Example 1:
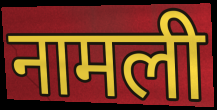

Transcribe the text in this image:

नामली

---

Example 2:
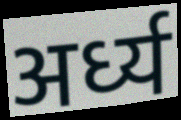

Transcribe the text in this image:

अर्ध्य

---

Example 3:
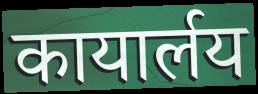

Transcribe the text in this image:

कायार्लय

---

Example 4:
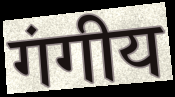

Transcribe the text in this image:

गंगीय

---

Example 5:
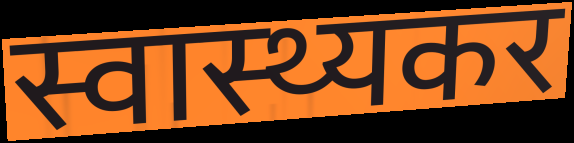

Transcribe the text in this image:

स्वास्थ्यकर